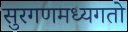
सुरगणमध्यगतो